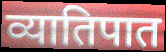
व्यातिपात